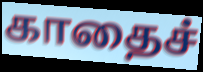
காதைச்